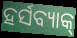
ହର୍ସବ୍ୟାକ୍